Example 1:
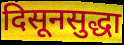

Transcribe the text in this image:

दिसूनसुद्धा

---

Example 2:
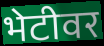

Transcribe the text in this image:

भेटीवर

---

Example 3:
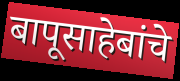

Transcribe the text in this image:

बापूसाहेबांचे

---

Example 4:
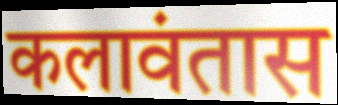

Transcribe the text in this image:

कलावंतास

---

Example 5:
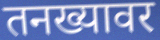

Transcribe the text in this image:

तनख्यावर